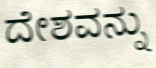
ದೇಶವನ್ನು